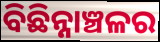
ବିଛିନ୍ନାଞ୍ଚଳର